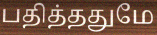
பதித்ததுமே